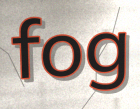
fog